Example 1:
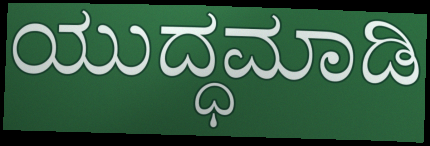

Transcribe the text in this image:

ಯುದ್ಧಮಾಡಿ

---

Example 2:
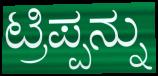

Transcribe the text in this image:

ಟ್ರಿಪ್ಪನ್ನು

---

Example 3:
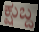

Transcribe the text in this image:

ಕ್ಷುಬ್ದ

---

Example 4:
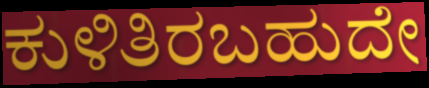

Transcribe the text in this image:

ಕುಳಿತಿರಬಹುದೇ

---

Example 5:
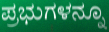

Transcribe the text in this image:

ಪ್ರಭುಗಳನ್ನೂ